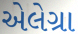
એલેગ્રા